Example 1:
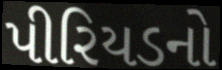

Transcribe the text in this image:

પીરિયડનો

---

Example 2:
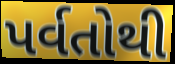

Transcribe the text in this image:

પર્વતોથી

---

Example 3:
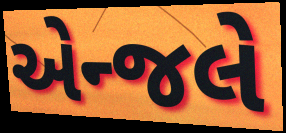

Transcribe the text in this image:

એન્જલે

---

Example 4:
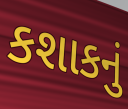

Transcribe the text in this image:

કશાકનું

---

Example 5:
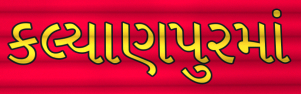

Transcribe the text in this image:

કલ્યાણપુરમાં